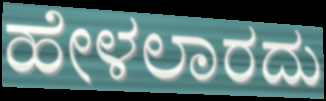
ಹೇಳಲಾರದು